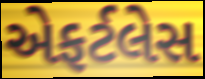
એફર્ટલેસ